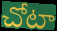
చోటా